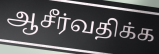
ஆசீர்வதிக்க